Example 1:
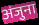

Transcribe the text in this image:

अंजुना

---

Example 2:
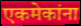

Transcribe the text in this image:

एकमेकांना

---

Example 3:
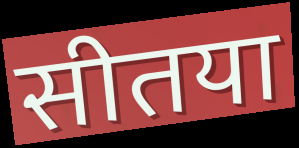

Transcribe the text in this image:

सीतया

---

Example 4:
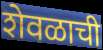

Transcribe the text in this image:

शेवळाची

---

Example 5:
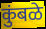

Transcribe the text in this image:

कुंबळे